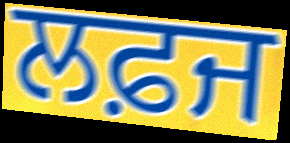
ਲਫ਼ਜ